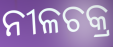
ନୀଳଚକ୍ର